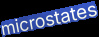
microstates